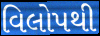
વિલોપથી